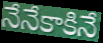
నేనేకాకినే